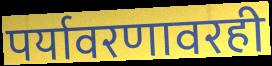
पर्यावरणावरही